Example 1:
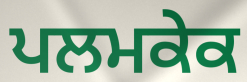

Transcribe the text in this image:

ਪਲਮਕੇਕ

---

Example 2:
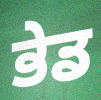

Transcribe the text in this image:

ਭੇਡ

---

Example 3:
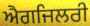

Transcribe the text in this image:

ਐਗਜਿਲਰੀ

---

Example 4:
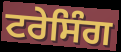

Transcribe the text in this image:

ਟਰੇਸਿੰਗ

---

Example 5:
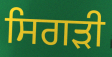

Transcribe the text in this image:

ਸਿਗੜੀ